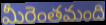
మీరెంతమంది